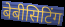
बेबीसिटिंग